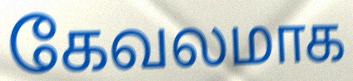
கேவலமாக